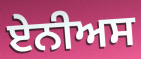
ਏਨੀਅਸ